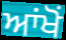
ਆਂਖੋਂ